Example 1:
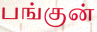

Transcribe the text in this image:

பங்குன்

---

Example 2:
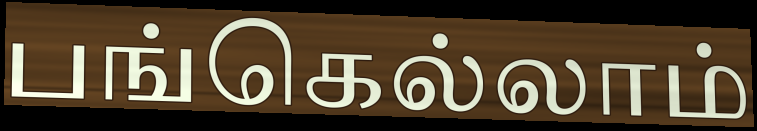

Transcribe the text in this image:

பங்கெல்லாம்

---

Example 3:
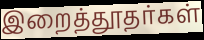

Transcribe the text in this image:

இறைத்தூதர்கள்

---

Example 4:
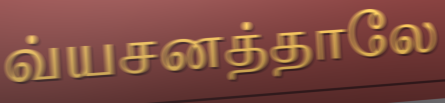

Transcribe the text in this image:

வ்யசனத்தாலே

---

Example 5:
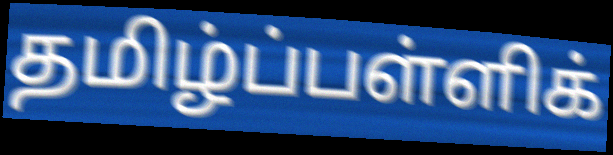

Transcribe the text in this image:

தமிழ்ப்பள்ளிக்